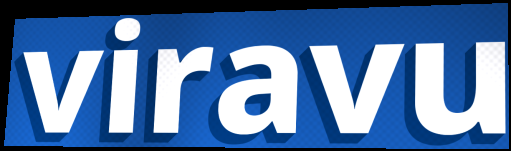
viravu